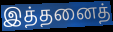
இத்தனைத்